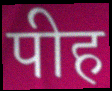
पीह